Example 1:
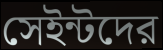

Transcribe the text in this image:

সেইন্টদের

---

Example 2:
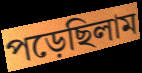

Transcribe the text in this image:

পড়েছিলাম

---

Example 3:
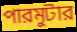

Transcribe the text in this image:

পারমুটার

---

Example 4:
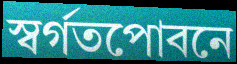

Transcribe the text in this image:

স্বর্গতপোবনে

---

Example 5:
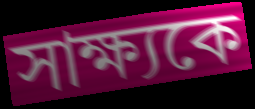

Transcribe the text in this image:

সাক্ষ্যকে